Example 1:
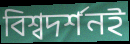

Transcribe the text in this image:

বিশ্বদর্শনই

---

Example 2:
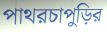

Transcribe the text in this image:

পাথরচাপুড়ির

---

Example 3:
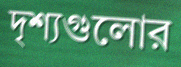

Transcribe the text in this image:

দৃশ্যগুলোর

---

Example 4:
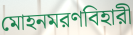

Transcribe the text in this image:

মোহনমরণবিহারী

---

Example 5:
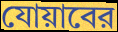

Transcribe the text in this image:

যোয়াবের